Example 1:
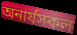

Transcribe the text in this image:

অনাৰ্যসকল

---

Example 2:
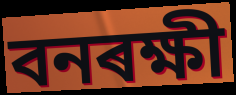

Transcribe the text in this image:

বনৰক্ষী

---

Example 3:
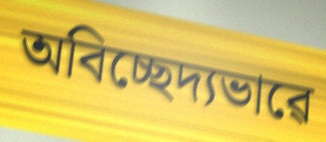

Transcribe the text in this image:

অবিচ্ছেদ্যভাৱে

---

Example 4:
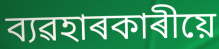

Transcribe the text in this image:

ব্যৱহাৰকাৰীয়ে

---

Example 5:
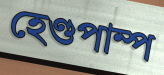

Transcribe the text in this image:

হেণ্ডপাম্প